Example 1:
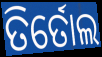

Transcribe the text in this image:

ତିର୍ତୋଲ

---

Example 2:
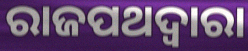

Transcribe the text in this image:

ରାଜପଥଦ୍ୱାରା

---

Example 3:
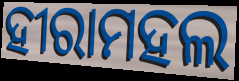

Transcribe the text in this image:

ହୀରାମହଲ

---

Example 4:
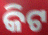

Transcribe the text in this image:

କିଟ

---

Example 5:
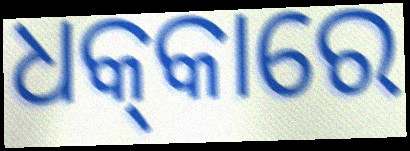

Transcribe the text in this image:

ଧକ୍‍କାରେ